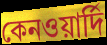
কেনওয়ার্দি